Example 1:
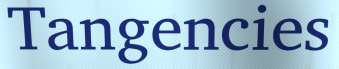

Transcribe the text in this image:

Tangencies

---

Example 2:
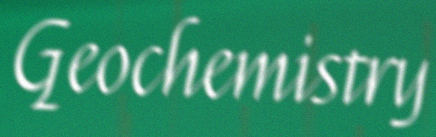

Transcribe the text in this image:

Geochemistry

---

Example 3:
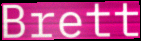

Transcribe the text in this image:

Brett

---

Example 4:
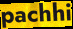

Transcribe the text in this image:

pachhi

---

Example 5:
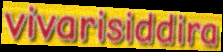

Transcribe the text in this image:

vivarisiddira